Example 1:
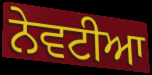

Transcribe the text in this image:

ਨੇਵਟੀਆ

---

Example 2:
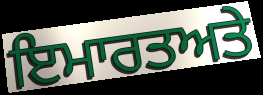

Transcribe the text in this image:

ਇਮਾਰਤਅਤੇ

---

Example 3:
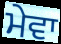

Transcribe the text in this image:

ਮੇਵਾ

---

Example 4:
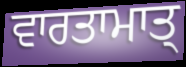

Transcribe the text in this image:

ਵਾਰਤਾਮਾਤ੍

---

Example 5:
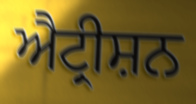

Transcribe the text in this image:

ਐਟ੍ਰੀਸ਼ਨ